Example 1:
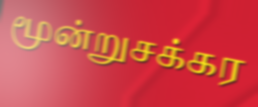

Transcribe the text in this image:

மூன்றுசக்கர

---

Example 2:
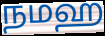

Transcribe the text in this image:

நமஹ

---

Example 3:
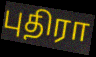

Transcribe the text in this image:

புதிரா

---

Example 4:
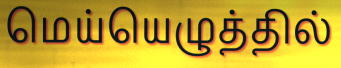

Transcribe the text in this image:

மெய்யெழுத்தில்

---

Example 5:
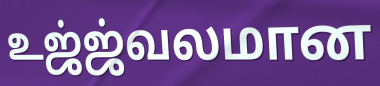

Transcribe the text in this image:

உஜ்ஜ்வலமான